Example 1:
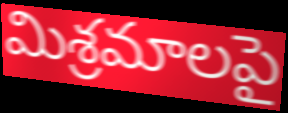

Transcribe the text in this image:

మిశ్రమాలపై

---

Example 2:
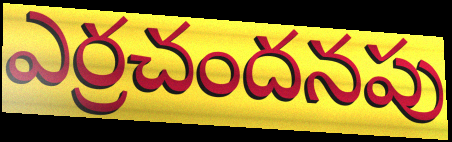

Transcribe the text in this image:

ఎర్రచందనపు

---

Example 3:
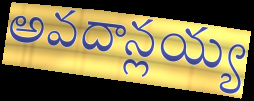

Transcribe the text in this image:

అవదాన్లయ్య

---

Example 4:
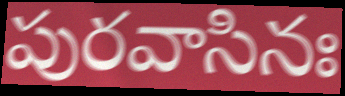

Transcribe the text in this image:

పురవాసినః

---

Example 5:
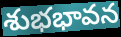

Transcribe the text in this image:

శుభభావన